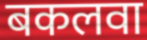
बकलवा